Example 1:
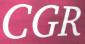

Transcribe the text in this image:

CGR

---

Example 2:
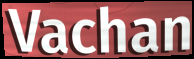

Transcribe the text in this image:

Vachan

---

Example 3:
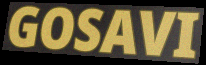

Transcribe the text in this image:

GOSAVI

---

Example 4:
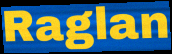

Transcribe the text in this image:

Raglan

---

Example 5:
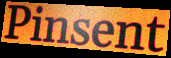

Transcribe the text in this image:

Pinsent